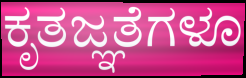
ಕೃತಜ್ಞತೆಗಳೂ